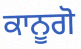
ਕਾਨੂਗੋ